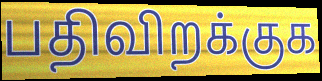
பதிவிறக்குக